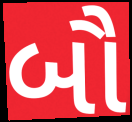
બૌ